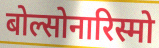
बोल्सोनारिस्मो